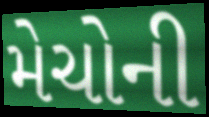
મેચોની